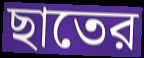
ছাতের